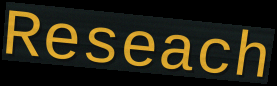
Reseach